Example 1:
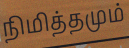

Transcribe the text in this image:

நிமித்தமும்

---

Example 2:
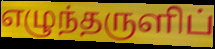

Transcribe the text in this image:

எழுந்தருளிப்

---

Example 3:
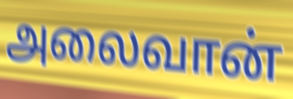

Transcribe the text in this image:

அலைவான்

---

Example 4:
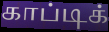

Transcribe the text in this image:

காப்டிக்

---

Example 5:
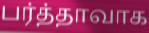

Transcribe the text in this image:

பர்த்தாவாக